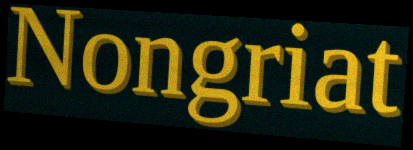
Nongriat